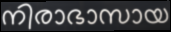
നിരാഭാസായ